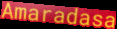
Amaradasa